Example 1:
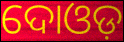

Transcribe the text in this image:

ଦୋଓଡ଼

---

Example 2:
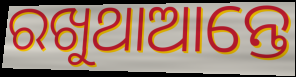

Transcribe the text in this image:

ରଖୁଥାଆନ୍ତେ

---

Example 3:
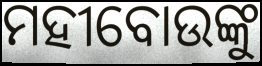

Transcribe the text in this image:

ମହୀବୋଉଙ୍କୁ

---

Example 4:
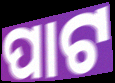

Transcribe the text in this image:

ପାଟ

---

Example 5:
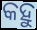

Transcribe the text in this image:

କହୁ